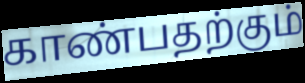
காண்பதற்கும்